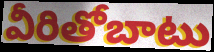
వీరితోబాటు